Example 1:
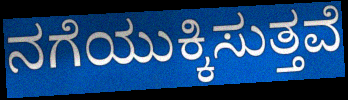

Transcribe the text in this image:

ನಗೆಯುಕ್ಕಿಸುತ್ತವೆ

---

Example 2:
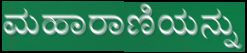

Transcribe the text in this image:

ಮಹಾರಾಣಿಯನ್ನು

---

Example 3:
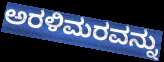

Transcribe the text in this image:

ಅರಳಿಮರವನ್ನು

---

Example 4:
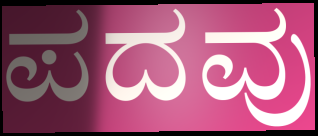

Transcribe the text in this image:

ಪದವು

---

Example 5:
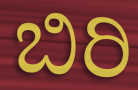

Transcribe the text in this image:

ಬಿರಿ